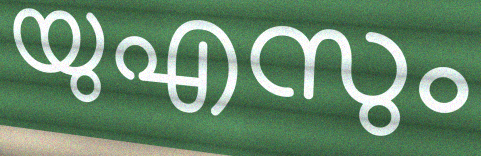
യുഎസും